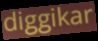
diggikar